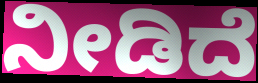
ನೀಡಿದೆ